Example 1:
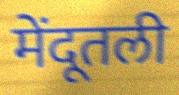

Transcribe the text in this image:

मेंदूतली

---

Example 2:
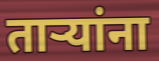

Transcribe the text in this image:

ताऱ्यांना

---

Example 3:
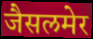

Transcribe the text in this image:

जैसलमेर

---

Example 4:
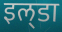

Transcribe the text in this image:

इल्डा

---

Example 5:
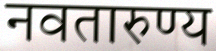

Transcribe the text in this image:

नवतारुण्य